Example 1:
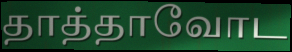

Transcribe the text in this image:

தாத்தாவோட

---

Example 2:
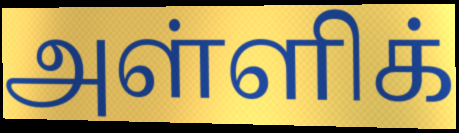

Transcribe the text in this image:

அள்ளிக்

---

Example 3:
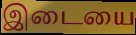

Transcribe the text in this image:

இடையை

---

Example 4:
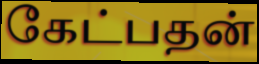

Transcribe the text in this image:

கேட்பதன்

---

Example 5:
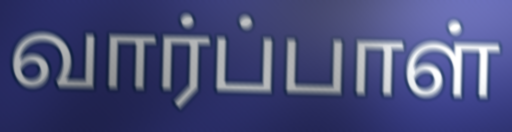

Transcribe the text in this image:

வார்ப்பாள்